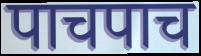
पाचपाच